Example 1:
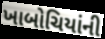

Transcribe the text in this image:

ખાબોચિયાંની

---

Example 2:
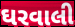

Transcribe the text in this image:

ઘરવાલી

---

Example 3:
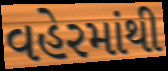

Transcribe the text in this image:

વહેરમાંથી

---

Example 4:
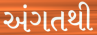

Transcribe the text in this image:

અંગતથી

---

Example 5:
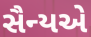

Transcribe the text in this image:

સૈન્યએ